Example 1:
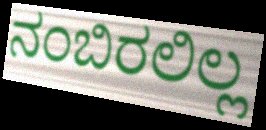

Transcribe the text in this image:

ನಂಬಿರಲಿಲ್ಲ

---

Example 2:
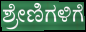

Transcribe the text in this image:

ಶ್ರೇಣಿಗಳಿಗೆ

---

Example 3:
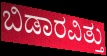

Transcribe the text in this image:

ಬಿಡಾರವಿತ್ತು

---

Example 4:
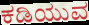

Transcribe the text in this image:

ಕಡಿಯುವ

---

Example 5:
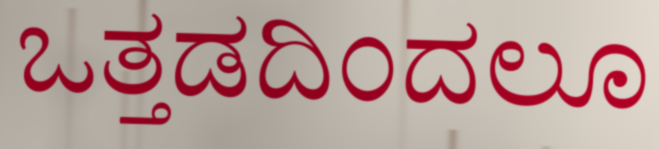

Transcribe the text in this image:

ಒತ್ತಡದಿಂದಲೂ